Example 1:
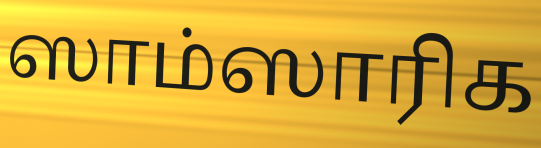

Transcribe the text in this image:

ஸாம்ஸாரிக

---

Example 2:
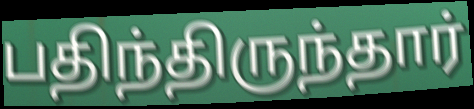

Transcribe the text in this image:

பதிந்திருந்தார்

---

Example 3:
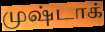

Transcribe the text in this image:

முஷ்டாக்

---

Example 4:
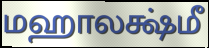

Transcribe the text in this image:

மஹாலக்ஷ்மீ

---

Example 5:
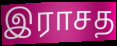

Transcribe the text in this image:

இராசத